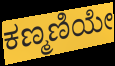
ಕಣ್ಮಣಿಯೇ